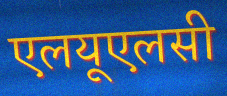
एलयूएलसी